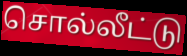
சொல்லீட்டு